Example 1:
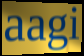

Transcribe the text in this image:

aagi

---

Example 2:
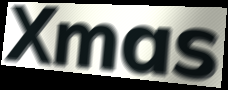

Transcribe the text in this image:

Xmas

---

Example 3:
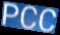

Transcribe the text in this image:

PCC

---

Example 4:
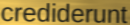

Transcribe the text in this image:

crediderunt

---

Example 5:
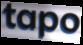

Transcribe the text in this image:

tapo